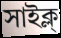
সাইক্ল্